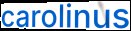
carolinus